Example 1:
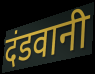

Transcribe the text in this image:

दंडवानी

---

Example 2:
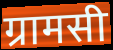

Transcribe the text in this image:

ग्रामसी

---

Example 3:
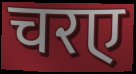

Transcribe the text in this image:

चरए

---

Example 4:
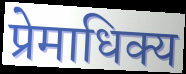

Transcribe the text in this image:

प्रेमाधिक्य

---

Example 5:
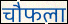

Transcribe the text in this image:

चौफला